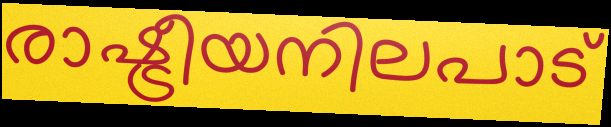
രാഷ്ട്രീയനിലപാട്